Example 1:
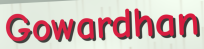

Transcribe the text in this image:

Gowardhan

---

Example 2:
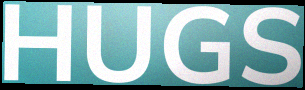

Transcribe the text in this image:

HUGS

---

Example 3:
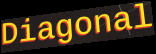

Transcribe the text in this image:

Diagonal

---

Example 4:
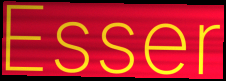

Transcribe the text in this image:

Esser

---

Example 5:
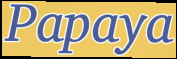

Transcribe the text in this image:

Papaya